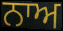
ਨਾਅ